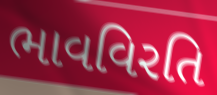
ભાવવિરતિ